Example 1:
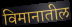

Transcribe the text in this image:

विमानातील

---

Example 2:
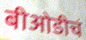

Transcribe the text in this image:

बीओडीचं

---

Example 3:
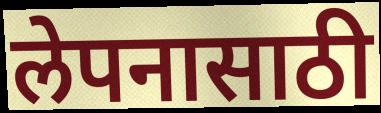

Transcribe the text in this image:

लेपनासाठी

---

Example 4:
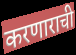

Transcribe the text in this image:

करणाराची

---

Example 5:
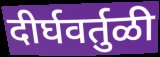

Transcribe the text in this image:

दीर्घवर्तुळी